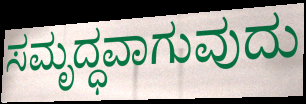
ಸಮೃದ್ಧವಾಗುವುದು